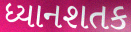
ધ્યાનશતક